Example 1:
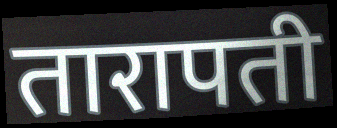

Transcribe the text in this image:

तारापती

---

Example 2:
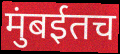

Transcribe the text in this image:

मुंबईतच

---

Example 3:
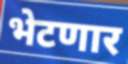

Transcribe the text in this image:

भेटणार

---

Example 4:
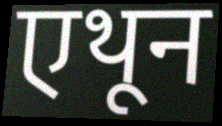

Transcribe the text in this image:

एथून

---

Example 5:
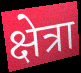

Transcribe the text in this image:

क्षेत्रा